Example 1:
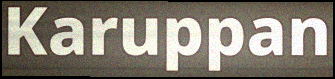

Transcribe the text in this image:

Karuppan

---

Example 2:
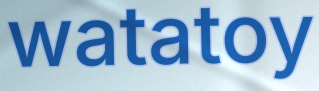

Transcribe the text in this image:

watatoy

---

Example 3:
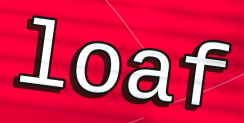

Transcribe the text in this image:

loaf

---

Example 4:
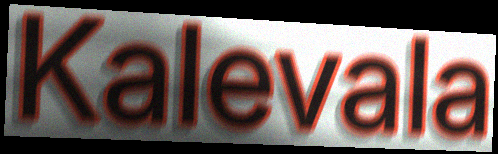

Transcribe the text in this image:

Kalevala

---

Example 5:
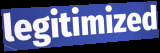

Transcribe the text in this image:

legitimized